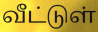
வீட்டுள்